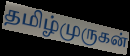
தமிழ்முருகன்